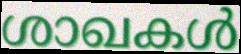
ശാഖകൾ